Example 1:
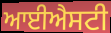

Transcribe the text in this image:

ਆਈਐਸਟੀ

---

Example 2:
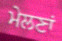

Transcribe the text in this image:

ਮੇਲਣਾਂ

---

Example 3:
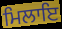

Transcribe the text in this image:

ਮਿਲਾਇ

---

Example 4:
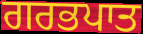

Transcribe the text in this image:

ਗਰਭਪਾਤ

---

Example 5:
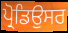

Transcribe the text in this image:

ਪ੍ਰੋਡਿਉਸਰ